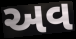
અવ